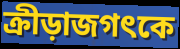
ক্রীড়াজগৎকে